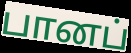
பானப்